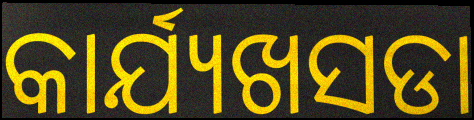
କାର୍ଯ୍ୟଖସଡା